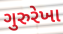
ગુરુરેખા